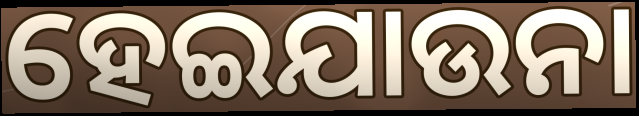
ହେଇଯାଉନା